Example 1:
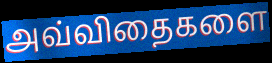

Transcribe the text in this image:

அவ்விதைகளை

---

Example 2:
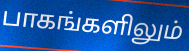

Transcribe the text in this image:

பாகங்களிலும்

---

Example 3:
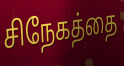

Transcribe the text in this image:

சிநேகத்தை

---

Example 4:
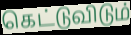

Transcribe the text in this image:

கெட்டுவிடும்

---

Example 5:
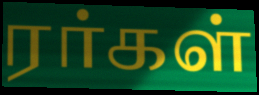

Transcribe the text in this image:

ரர்கள்